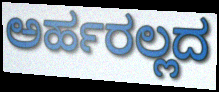
ಅರ್ಹರಲ್ಲದ